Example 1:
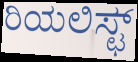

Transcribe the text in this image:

ರಿಯಲಿಸ್ಟ್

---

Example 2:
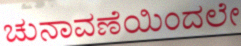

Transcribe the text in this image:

ಚುನಾವಣೆಯಿಂದಲೇ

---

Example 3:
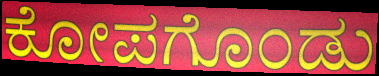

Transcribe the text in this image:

ಕೋಪಗೊಂಡು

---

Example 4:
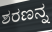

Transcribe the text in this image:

ಶರಣನ್ನ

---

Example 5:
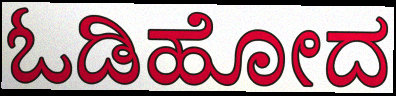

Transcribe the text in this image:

ಓಡಿಹೋದ